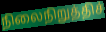
நிலைநிறுத்திச்